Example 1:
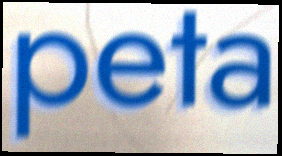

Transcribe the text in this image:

peta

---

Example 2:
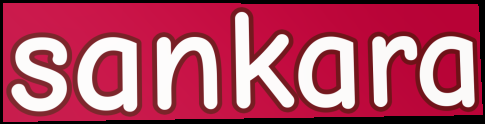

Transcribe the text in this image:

sankara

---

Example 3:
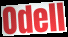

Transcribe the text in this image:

Odell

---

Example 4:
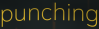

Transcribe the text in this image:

punching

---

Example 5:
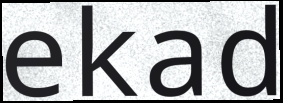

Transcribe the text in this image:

ekad